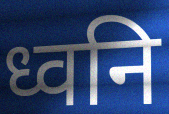
ध्वनि